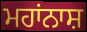
ਮਹਾਂਨਾਸ਼